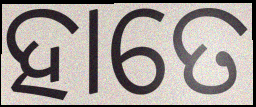
ହାତେ